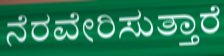
ನೆರವೇರಿಸುತ್ತಾರೆ